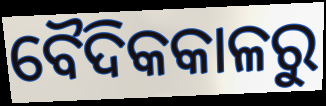
ବୈଦିକକାଳରୁ